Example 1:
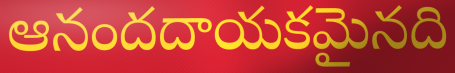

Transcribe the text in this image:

ఆనందదాయకమైనది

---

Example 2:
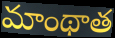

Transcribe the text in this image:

మాంథాత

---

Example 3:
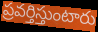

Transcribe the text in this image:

ప్రవర్తిస్తుంటారు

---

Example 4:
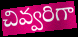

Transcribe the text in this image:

చివ్వరిగా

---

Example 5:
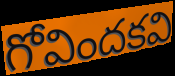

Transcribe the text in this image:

గోవిందకవి